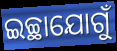
ଇଚ୍ଛାଯୋଗୁଁ